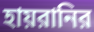
হায়রানির